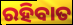
ରହିବାତ